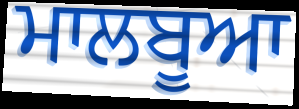
ਮਾਲਬੂਆ